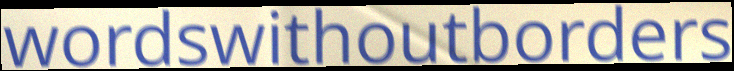
wordswithoutborders